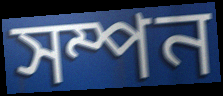
সম্পন